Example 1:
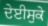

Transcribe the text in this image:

ਦੇਈਸੁਕੇ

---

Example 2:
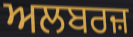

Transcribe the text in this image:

ਅਲਬਰਜ਼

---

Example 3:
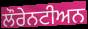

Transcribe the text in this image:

ਲੌਰੇਨਟੀਅਨ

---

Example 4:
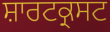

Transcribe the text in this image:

ਸ਼ਾਰਟਕ੍ਰਸਟ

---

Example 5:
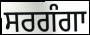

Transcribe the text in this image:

ਸਰਗੰਗਾ